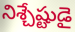
నిశ్చేష్టుడై